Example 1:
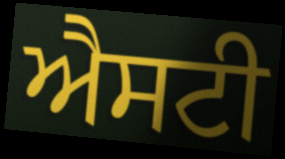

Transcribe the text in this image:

ਐਸਟੀ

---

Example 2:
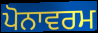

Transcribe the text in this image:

ਪੋਨਾਵਰਮ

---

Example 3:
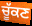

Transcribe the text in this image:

ਚੂੱਕਣ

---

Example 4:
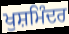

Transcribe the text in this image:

ਖੁਸ਼ਮਿੰਦਰ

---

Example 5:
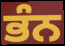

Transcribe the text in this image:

ਭੰਨ